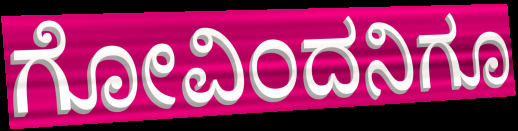
ಗೋವಿಂದನಿಗೂ